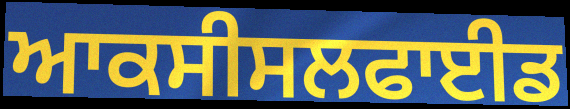
ਆਕਸੀਸਲਫਾਈਡ